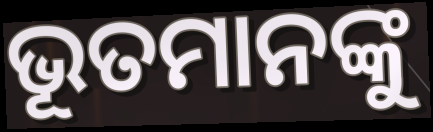
ଭୂତମାନଙ୍କୁ